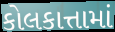
કોલકાત્તામાં